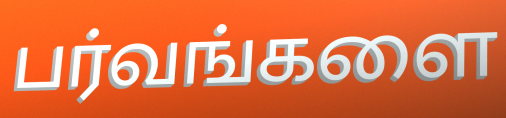
பர்வங்களை